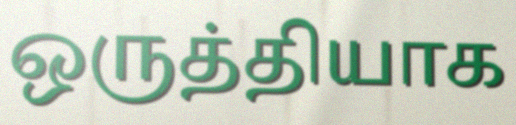
ஒருத்தியாக